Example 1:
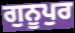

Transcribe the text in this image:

ਗੁਨੂਪੁਰ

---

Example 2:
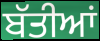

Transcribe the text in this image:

ਬੱਤੀਆਂ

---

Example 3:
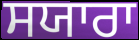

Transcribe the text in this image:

ਸਯਾਰਾ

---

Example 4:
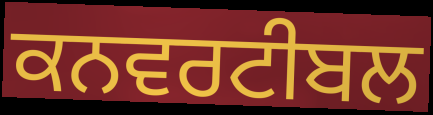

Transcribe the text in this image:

ਕਨਵਰਟੀਬਲ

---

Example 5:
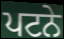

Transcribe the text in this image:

ਪਟਨੇ